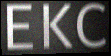
EKC